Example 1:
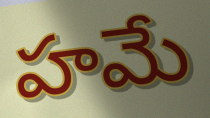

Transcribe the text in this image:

హమే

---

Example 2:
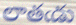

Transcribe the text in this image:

లాతఁడు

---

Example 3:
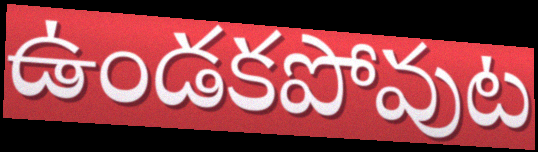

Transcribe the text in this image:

ఉండకపోవుట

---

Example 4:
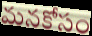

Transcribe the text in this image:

మనకోసం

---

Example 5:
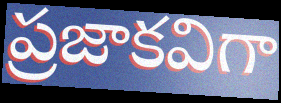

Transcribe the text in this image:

ప్రజాకవిగా